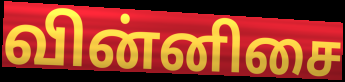
வின்னிசை